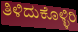
ತಿಳಿದುಕೊಳ್ಳಿರಿ